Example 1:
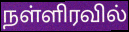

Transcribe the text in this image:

நள்ளிரவில்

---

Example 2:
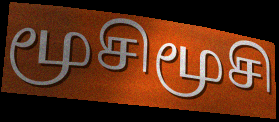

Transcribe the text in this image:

மூசிமூசி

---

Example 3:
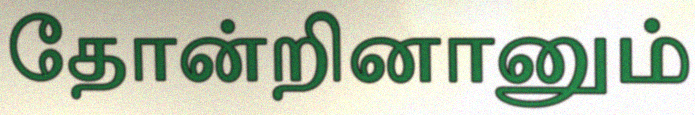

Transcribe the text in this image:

தோன்றினானும்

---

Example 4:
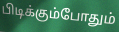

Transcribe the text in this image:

பிடிக்கும்போதும்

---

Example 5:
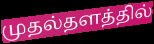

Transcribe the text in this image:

முதல்தளத்தில்